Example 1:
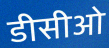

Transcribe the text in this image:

डीसीओ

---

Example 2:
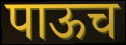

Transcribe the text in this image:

पाऊच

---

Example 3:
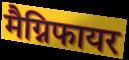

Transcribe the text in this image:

मैग्निफायर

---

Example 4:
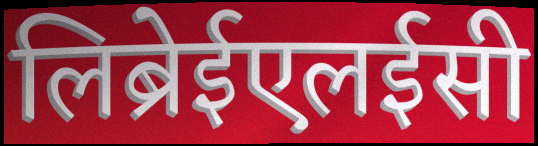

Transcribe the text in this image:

लिब्रेईएलईसी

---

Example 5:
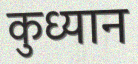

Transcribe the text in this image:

कुध्यान